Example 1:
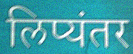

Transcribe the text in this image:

लिप्यंतर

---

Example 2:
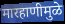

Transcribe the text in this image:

मारहाणीमुळे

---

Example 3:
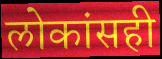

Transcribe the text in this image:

लोकांसही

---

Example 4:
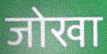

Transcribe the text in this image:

जोखा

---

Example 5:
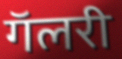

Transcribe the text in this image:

गॅलरी